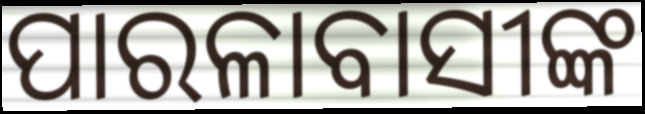
ପାରଳାବାସୀଙ୍କ